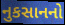
નુકસાનનો